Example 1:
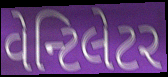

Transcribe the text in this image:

વેન્ટિલેટર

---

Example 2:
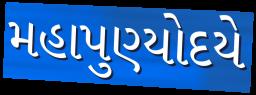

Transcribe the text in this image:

મહાપુણ્યોદયે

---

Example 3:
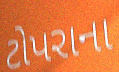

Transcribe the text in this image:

ટોપરાના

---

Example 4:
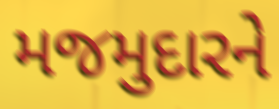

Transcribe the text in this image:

મજમુદારને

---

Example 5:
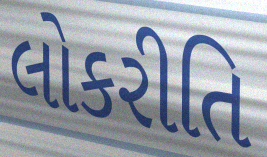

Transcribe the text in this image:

લોકરીતિ